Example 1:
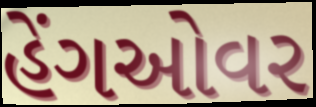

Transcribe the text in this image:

હેંગઓવર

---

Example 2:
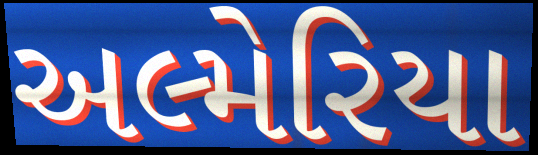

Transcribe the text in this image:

અલ્મેરિયા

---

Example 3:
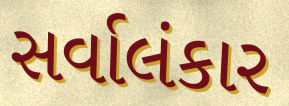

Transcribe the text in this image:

સર્વાલંકાર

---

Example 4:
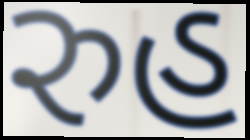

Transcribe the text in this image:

રુહ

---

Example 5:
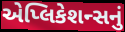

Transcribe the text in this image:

એપ્લિકેશન્સનું